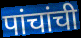
पांचांची